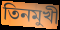
তিনমুখী